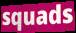
squads